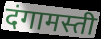
दंगामस्ती